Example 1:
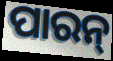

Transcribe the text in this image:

ପାରନ୍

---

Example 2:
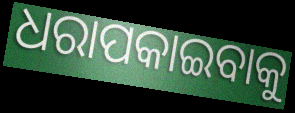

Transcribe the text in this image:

ଧରାପକାଇବାକୁ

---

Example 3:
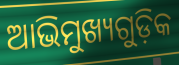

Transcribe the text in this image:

ଆଭିମୁଖ୍ୟଗୁଡ଼ିକ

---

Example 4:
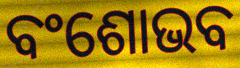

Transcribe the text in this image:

ବଂଶୋଭବ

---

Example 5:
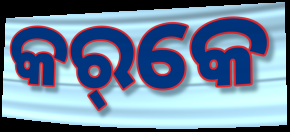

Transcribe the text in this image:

କର୍‌କେ